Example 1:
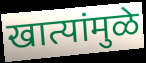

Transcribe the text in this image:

खात्यांमुळे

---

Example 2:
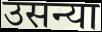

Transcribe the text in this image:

उसन्या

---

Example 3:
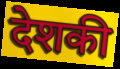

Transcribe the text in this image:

देशकी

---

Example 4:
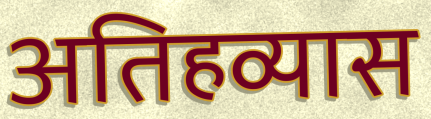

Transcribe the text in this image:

अतिहव्यास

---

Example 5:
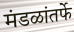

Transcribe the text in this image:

मंडळांतर्फे